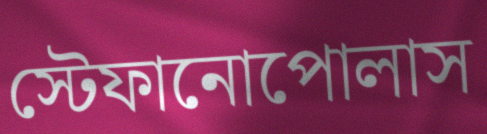
স্টেফানোপোলাস